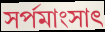
সর্পমাংসাৎ